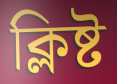
ক্লিষ্ট